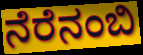
ನೆರೆನಂಬಿ